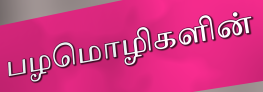
பழமொழிகளின்